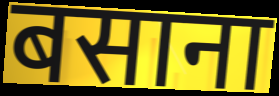
बसाना